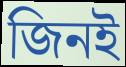
জিনই